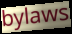
bylaws